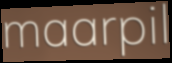
maarpil